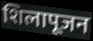
शिलापूजन